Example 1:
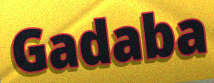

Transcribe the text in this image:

Gadaba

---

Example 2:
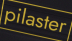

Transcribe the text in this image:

pilaster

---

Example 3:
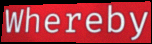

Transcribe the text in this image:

Whereby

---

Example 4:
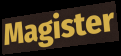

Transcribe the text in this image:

Magister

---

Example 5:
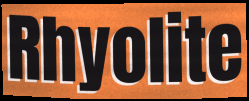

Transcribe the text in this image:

Rhyolite